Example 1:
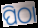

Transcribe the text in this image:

ପିଠା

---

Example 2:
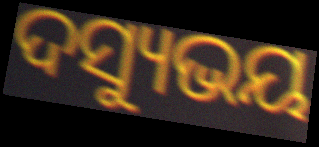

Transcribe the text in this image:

ଦସ୍ୟୁଭୟ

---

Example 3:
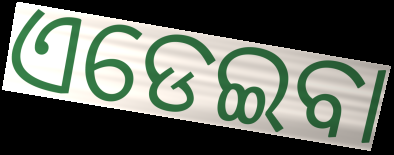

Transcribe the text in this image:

ଏଡେଇବା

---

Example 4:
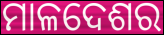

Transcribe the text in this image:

ମାଳଦେଶର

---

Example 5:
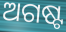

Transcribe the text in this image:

ଅଗଷ୍ଟ